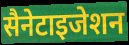
सैनेटाइजेशन